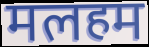
मलहम